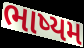
ભાષ્યમ